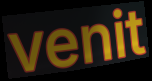
venit